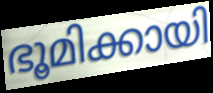
ഭൂമിക്കായി